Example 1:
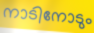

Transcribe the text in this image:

നാടിനോടും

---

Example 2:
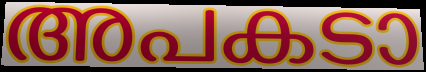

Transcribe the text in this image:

അപകടാ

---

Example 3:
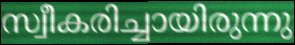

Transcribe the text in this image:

സ്വീകരിച്ചായിരുന്നു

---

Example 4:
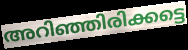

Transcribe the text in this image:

അറിഞ്ഞിരിക്കട്ടെ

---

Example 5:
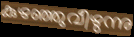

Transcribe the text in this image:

കുഴഞ്ഞുവീഴുന്നു